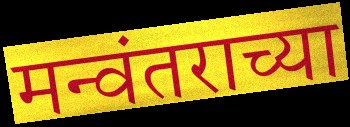
मन्वंतराच्या